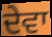
ਦੇਵਾ